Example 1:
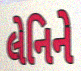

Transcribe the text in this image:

લેનિને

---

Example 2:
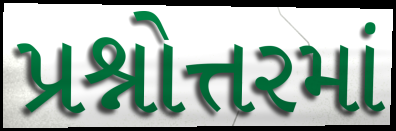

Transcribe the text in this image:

પ્રશ્નોત્તરમાં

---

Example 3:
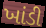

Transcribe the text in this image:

ખાંડી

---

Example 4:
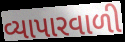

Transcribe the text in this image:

વ્યાપારવાળી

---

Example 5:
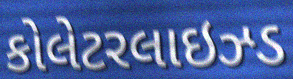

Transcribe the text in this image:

કોલેટરલાઇઝ્ડ